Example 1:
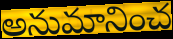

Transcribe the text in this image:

అనుమానించ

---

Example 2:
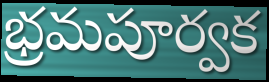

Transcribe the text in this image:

భ్రమపూర్వక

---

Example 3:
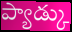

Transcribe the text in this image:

ప్యాడ్కు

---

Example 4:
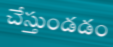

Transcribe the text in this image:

చేస్తుండడం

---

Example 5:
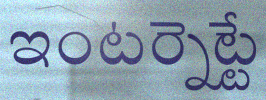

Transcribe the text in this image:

ఇంటర్నెట్టే